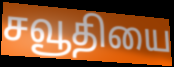
சவூதியை